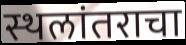
स्थलांतराचा